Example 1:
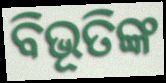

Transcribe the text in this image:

ବିଭୂତିଙ୍କ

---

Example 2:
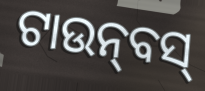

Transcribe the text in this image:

ଟାଉନ୍‍ବସ୍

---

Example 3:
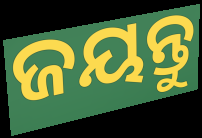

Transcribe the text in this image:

ଜୟନ୍ତୁ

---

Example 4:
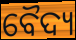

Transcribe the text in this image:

ବୈଦ୍ୟ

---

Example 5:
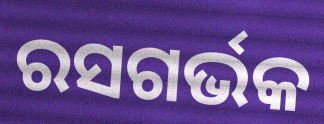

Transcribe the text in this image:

ରସଗର୍ଭକ